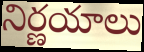
నిర్ణయాలు